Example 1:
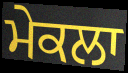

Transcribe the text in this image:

ਮੇਕਲਾ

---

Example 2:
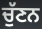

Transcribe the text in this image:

ਚੁੱਣਨ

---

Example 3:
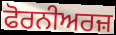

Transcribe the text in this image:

ਫੋਰਨੀਅਰਜ਼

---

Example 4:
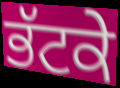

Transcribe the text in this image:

ਭੱਟਕੇ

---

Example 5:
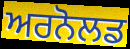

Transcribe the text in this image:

ਅਰਨੋਲਡ